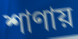
শাণায়